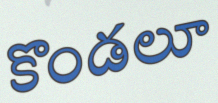
కొండలూ